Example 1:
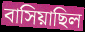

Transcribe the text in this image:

বাসিয়াছিল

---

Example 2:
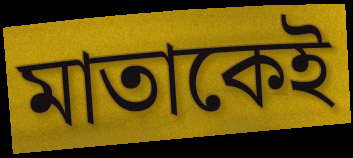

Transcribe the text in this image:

মাতাকেই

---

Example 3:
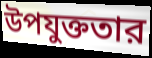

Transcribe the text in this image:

উপযুক্ততার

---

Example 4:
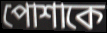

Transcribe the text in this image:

পোশাকে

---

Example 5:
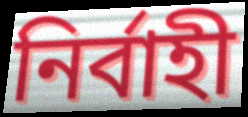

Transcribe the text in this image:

নির্বাহী